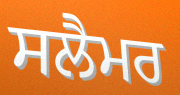
ਸਲੈਮਰ